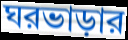
ঘরভাড়ার